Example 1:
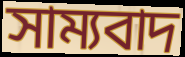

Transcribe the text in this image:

সাম্যবাদ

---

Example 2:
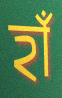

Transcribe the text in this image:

হাঁ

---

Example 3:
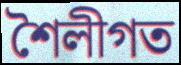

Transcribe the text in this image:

শৈলীগত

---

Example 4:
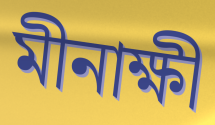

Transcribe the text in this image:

মীনাক্ষী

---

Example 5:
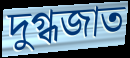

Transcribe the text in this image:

দুগ্ধজাত